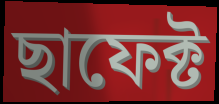
ছাফেক্ট